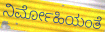
ನಿರ್ಮೋಹಿಯಂತೆ